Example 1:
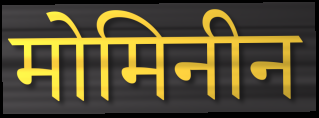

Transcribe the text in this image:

मोमिनीन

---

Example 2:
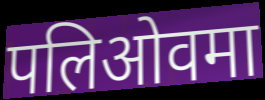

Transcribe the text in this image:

पलिओवमा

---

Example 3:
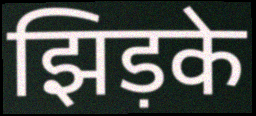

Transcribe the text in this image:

झिड़के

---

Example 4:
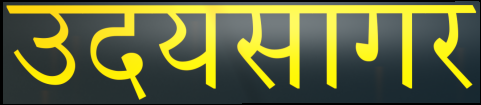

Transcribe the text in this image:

उदयसागर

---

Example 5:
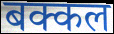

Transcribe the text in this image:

बक्कल